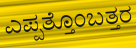
ಎಪ್ಪತ್ತೊಂಬತ್ತರ